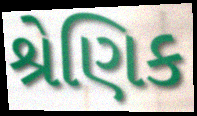
શ્રેણિક